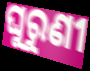
ଘୁରୁଣୀ